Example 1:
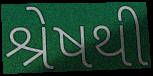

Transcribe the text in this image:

શ્રેષથી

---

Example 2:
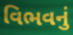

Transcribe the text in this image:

વિભવનું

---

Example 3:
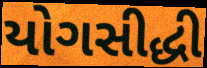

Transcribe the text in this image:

યોગસીદ્ધી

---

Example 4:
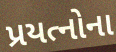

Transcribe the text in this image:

પ્રયત્નોના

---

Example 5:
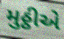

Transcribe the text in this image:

મુઠ્ઠીએ